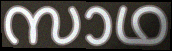
സാഥ